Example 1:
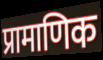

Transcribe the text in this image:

प्रामाणिक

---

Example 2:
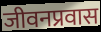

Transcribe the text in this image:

जीवनप्रवास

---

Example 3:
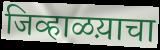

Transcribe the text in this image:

जिव्हाळय़ाचा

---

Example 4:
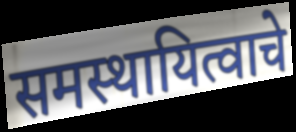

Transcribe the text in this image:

समस्थायित्वाचे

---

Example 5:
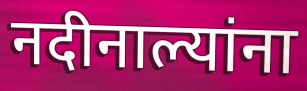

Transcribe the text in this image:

नदीनाल्यांना